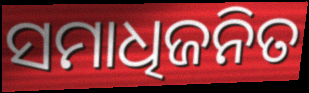
ସମାଧିଜନିତ